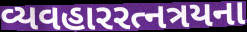
વ્યવહારરત્નત્રયના